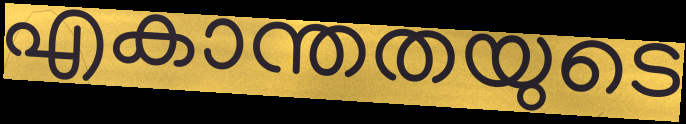
എകാന്തതയുടെ